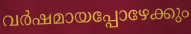
വർഷമായപ്പോഴേക്കും